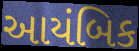
આયંબિક